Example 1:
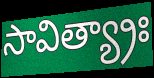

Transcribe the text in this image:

సావిత్య్రాః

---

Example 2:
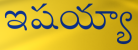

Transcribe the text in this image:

ఇషయ్యా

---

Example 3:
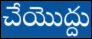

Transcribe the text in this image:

చేయొద్దు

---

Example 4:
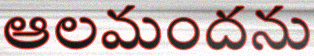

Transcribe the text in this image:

ఆలమందను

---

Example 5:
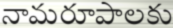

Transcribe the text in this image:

నామరూపాలకు